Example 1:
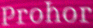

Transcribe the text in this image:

Prohor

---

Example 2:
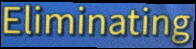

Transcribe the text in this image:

Eliminating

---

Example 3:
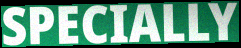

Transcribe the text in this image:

SPECIALLY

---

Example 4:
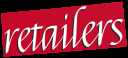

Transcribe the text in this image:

retailers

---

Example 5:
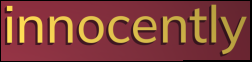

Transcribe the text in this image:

innocently